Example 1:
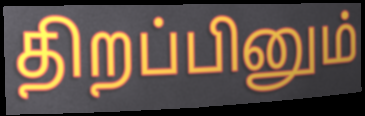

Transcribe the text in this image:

திறப்பினும்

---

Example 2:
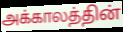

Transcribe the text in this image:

அக்காலத்தின்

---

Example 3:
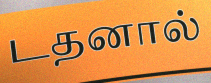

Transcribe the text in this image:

டதனால்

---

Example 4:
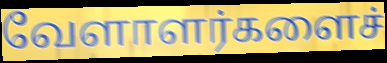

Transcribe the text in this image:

வேளாளர்களைச்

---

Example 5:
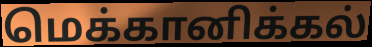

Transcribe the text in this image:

மெக்கானிக்கல்